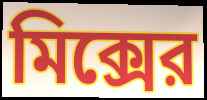
মিক্সের